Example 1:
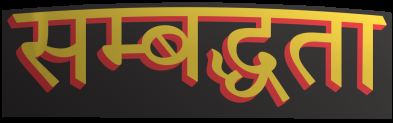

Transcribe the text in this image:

सम्‍बद्धता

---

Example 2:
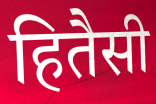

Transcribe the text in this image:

हितैसी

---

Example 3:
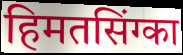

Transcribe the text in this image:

हिमतसिंग्का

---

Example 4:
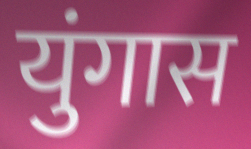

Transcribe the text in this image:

युंगास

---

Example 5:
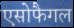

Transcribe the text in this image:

एसोफैगल